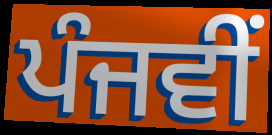
ਪੰਜਵੀਂ